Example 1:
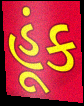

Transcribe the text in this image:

હૂંક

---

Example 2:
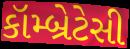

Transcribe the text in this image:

કૉમ્બ્રેટેસી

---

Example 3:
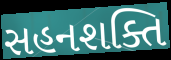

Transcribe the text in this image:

સહનશક્તિ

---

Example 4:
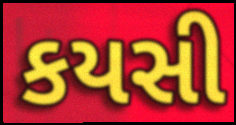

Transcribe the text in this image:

કયસી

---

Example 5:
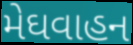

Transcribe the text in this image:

મેઘવાહન